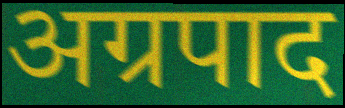
अग्रपाद